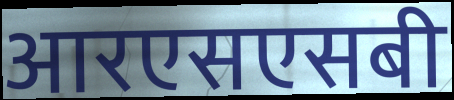
आरएसएसबी